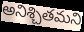
అనిశ్చితమని